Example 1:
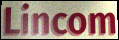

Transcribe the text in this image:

Lincom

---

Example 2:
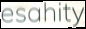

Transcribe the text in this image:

esahity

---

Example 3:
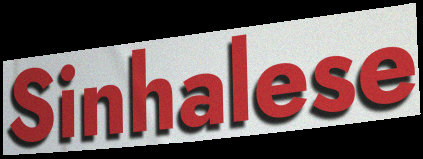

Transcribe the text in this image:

Sinhalese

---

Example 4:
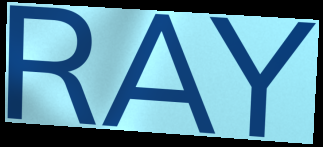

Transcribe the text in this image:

RAY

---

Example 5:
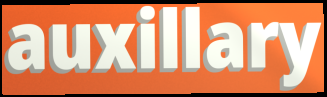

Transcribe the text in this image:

auxillary